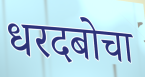
धरदबोचा